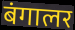
बंगालर